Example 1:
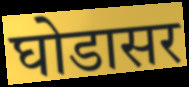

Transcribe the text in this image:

घोडासर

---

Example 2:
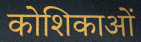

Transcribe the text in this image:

कोशिकाओं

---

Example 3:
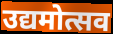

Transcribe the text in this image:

उद्यमोत्सव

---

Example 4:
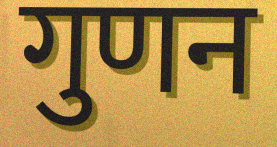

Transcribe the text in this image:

गुणन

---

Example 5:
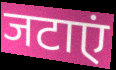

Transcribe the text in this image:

जटाएं